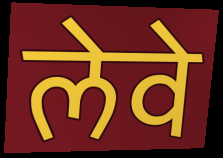
लेवे